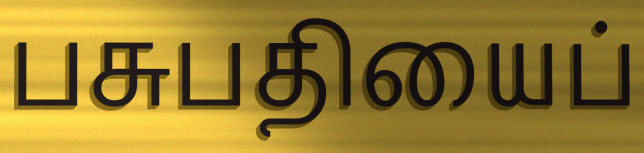
பசுபதியைப்